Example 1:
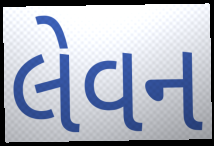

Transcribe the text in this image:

લેવન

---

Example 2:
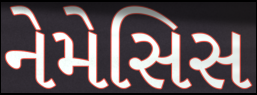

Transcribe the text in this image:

નેમેસિસ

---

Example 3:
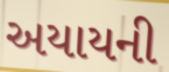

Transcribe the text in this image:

અયાયની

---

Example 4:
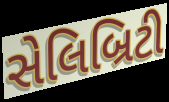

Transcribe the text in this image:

સેલિબ્રિટી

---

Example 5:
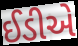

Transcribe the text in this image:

ઈડીએ